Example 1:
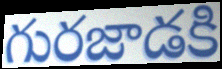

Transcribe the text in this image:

గురజాడకి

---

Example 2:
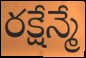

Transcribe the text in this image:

రక్షేన్మే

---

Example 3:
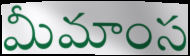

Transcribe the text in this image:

మీమాంస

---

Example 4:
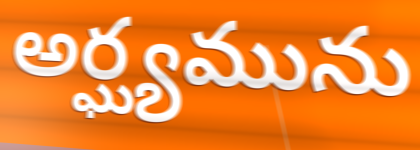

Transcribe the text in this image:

అర్ఘ్యమును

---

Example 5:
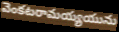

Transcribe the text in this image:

వెంకటరామయ్యయును